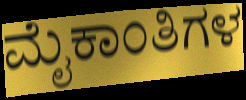
ಮೈಕಾಂತಿಗಳ